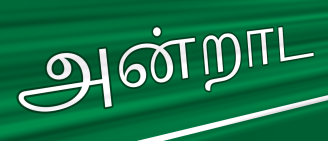
அன்றாட